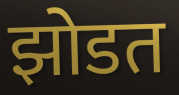
झोडत